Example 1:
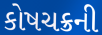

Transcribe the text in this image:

કોષચક્રની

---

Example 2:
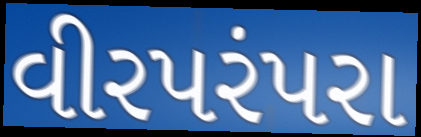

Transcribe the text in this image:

વીરપરંપરા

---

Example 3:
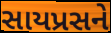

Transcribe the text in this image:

સાયપ્રસને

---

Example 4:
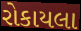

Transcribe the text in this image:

રોકાયલા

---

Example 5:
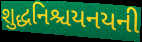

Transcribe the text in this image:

શુદ્ધનિશ્ચયનયની